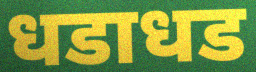
धडाधड